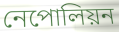
নেপোলিয়ন